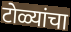
टोळ्यांचा